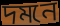
দমনে